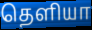
தெளியா